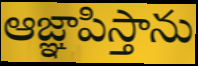
ఆజ్ఞాపిస్తాను